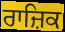
ਰਾਜ਼ਿਕ